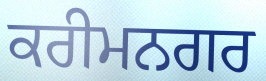
ਕਰੀਮਨਗਰ